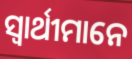
ସ୍ଵାର୍ଥୀମାନେ